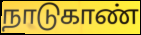
நாடுகாண்